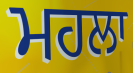
ਮਹਲਾ